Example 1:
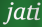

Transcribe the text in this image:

jati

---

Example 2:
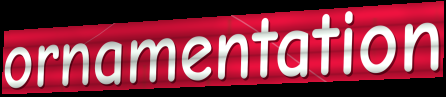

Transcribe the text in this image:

ornamentation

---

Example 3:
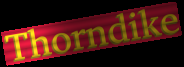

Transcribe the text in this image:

Thorndike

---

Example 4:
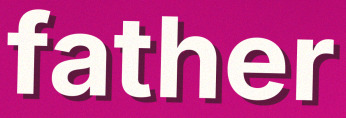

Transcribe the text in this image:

father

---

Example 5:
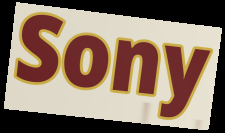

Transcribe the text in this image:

Sony